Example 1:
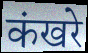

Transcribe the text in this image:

कंखरे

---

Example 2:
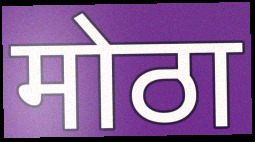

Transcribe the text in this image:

मोठा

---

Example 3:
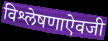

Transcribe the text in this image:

विश्लेषणाऐवजी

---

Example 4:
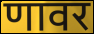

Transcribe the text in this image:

णावर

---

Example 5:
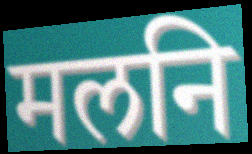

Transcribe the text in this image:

मलनि